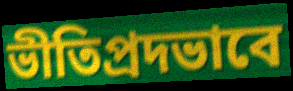
ভীতিপ্রদভাবে